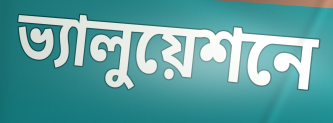
ভ্যালুয়েশনে